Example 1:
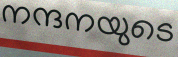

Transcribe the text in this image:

നന്ദനയുടെ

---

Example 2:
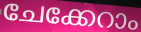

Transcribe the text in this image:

ചേക്കേറാം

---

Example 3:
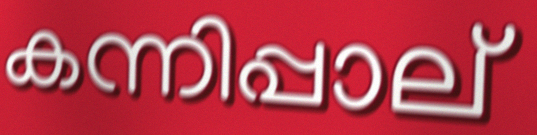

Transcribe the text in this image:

കന്നിപ്പാല്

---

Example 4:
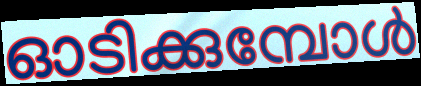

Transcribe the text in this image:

ഓടിക്കുമ്പോൾ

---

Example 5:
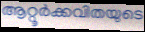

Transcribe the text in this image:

ആറ്റൂർക്കവിതയുടെ